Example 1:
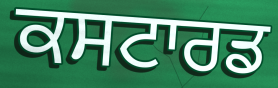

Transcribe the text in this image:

ਕਸਟਾਰਡ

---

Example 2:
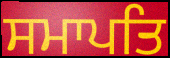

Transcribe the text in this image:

ਸਮਾਪਤਿ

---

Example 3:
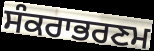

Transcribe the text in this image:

ਸੰਕਰਾਭਰਣਮ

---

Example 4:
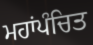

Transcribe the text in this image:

ਮਹਾਂਪੰਚਿਤ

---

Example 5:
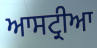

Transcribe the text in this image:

ਆਸਟ੍ਰੀਆ